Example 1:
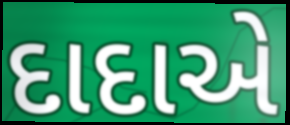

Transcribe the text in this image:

દાદાએ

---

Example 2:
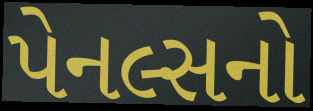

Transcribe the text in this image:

પેનલ્સનો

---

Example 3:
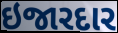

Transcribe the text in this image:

ઇજારદાર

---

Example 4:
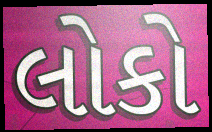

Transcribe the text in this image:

લોકો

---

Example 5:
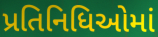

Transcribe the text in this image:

પ્રતિનિધિઓમાં